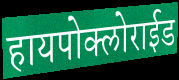
हायपोक्लोराईड